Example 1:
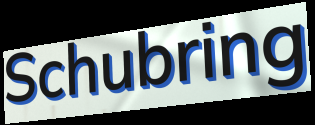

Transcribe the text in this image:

Schubring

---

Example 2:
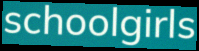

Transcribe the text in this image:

schoolgirls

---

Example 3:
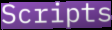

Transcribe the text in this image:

Scripts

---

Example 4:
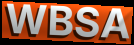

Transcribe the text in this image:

WBSA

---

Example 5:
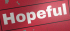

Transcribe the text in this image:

Hopeful